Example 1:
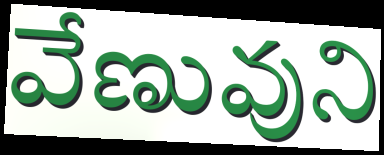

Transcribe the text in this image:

వేణువుని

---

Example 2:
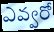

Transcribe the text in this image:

ఎవ్వరో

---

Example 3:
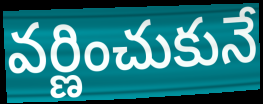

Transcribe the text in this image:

వర్ణించుకునే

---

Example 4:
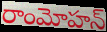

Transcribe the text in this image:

రాంమోహన్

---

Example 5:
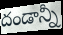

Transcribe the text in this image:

దండాన్నీ